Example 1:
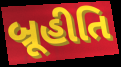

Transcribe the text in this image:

બ્રૂહીતિ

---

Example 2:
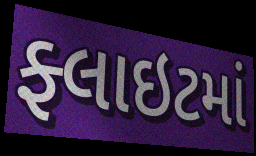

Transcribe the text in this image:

ફ્લાઇટમાં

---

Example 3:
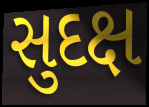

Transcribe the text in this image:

સુદક્ષ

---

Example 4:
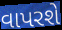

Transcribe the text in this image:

વાપરશે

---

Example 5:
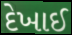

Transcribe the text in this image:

દેખાઈ